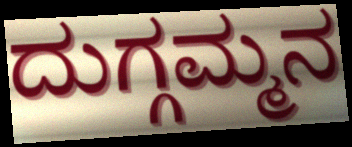
ದುಗ್ಗಮ್ಮನ